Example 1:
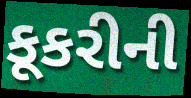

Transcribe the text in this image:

કૂકરીની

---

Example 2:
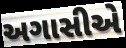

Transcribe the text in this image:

અગાસીએ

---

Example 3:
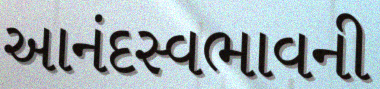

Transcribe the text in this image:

આનંદસ્વભાવની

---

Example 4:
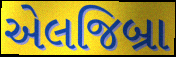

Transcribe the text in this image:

એલજિબ્રા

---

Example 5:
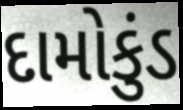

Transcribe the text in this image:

દામોકુંડ